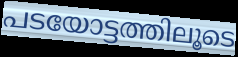
പടയോട്ടത്തിലൂടെ